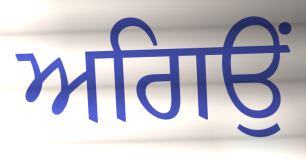
ਅਗਿਉਂ